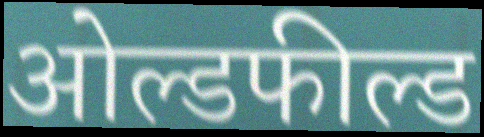
ओल्डफील्ड